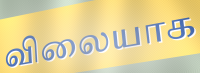
விலையாக